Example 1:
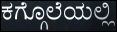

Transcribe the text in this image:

ಕಗ್ಗೊಲೆಯಲ್ಲಿ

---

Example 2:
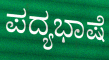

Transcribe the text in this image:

ಪದ್ಯಭಾಷೆ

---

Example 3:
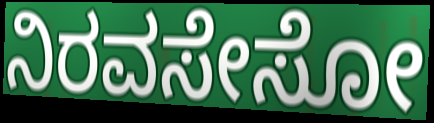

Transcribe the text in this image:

ನಿರವಸೇಸೋ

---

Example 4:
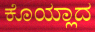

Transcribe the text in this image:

ಕೊಯ್ಲಾದ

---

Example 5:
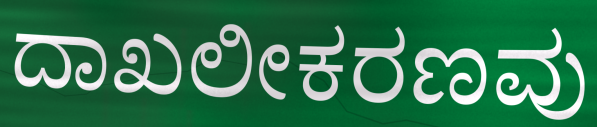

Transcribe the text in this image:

ದಾಖಲೀಕರಣವು